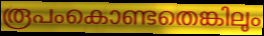
രൂപംകൊണ്ടതെങ്കിലും